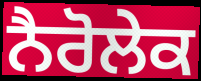
ਨੈਰੋਲੇਕ